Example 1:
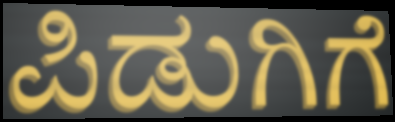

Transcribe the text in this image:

ಪಿಡುಗಿಗೆ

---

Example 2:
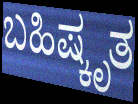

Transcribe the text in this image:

ಬಹಿಷ್ಕೃತ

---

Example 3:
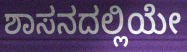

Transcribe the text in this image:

ಶಾಸನದಲ್ಲಿಯೇ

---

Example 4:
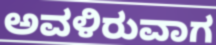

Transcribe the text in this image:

ಅವಳಿರುವಾಗ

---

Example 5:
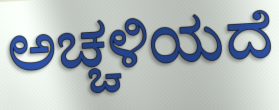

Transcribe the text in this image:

ಅಚ್ಚಳಿಯದೆ